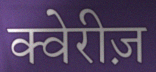
क्वेरीज़